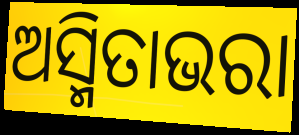
ଅସ୍ମିତାଭରା